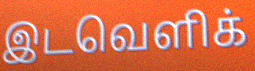
இடவெளிக்